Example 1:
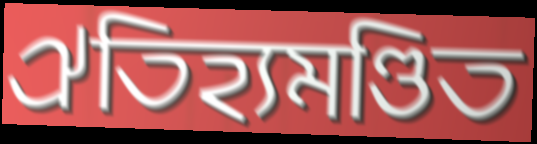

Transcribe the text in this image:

ঐতিহ্যমণ্ডিত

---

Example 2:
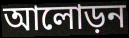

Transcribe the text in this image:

আলোড়ন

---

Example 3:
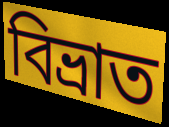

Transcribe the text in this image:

বিভ্ৰাত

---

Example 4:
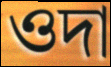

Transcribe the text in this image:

ওদা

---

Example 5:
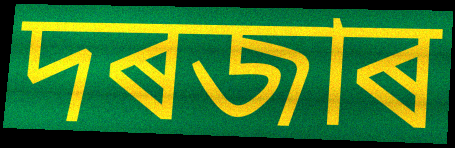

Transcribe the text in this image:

দৰজাৰ